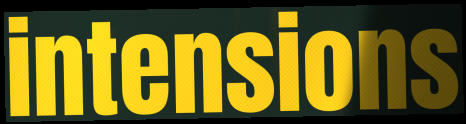
intensions